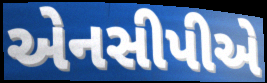
એનસીપીએ